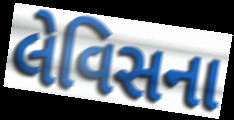
લેવિસના